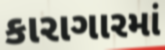
કારાગારમાં